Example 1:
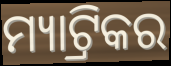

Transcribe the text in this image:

ମ୍ୟାଟ୍ରିକର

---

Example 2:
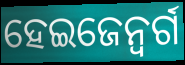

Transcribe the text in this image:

ହେଇଜେନ୍ବର୍ଗ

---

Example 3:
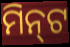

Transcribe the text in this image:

ମିନ୍‌ଟ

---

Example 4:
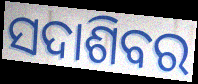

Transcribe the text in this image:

ସଦାଶିବର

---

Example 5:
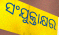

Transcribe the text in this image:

ସଂଯୁକ୍ତାକ୍ଷର